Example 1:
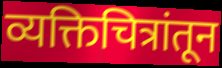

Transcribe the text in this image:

व्यक्तिचित्रांतून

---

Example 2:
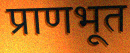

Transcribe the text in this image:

प्राणभूत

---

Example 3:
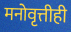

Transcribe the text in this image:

मनोवृत्तीही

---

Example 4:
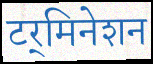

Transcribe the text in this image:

टर्मिनेशन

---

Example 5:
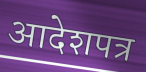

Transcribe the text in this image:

आदेशपत्र